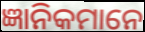
ଜ୍ଞାନିକମାନେ